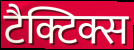
टैक्टिक्स